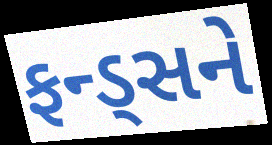
ફન્ડ્સને